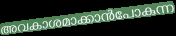
അവകാശമാക്കാൻപോകുന്ന